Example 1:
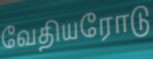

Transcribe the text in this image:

வேதியரோடு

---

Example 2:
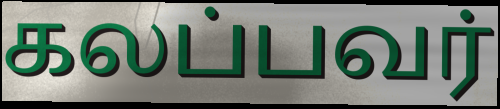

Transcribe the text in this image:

கலப்பவர்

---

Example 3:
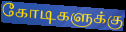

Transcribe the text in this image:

கோடிகளுக்கு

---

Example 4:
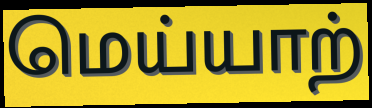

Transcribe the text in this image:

மெய்யாற்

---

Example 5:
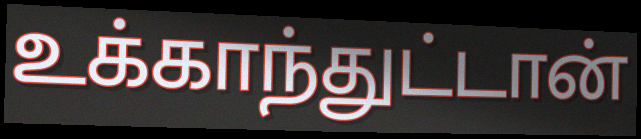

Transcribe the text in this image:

உக்காந்துட்டான்